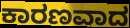
ಕಾರಣವಾದ